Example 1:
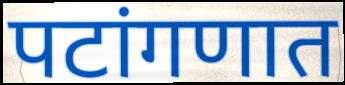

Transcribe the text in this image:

पटांगणात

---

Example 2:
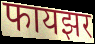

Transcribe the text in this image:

फायझर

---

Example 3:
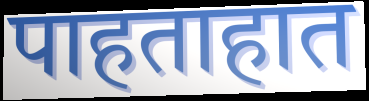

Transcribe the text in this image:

पाहताहात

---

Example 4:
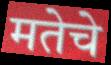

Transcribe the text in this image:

मतेचे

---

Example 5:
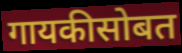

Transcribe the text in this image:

गायकीसोबत